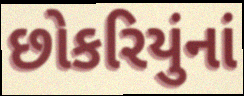
છોકરિયુંનાં